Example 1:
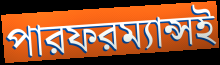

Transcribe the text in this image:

পারফরম্যান্সই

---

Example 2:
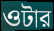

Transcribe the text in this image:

ওটার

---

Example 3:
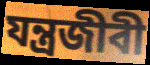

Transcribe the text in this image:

যন্ত্রজীবী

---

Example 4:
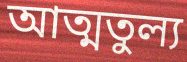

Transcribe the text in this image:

আত্মতুল্য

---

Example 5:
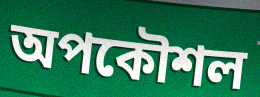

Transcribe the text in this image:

অপকৌশল